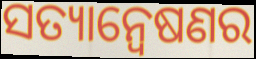
ସତ୍ୟାନ୍ୱେଷଣର